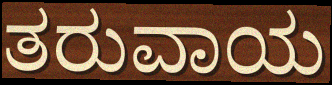
ತರುವಾಯ